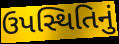
ઉપસ્થિતિનું